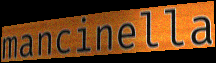
mancinella